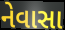
નેવાસા